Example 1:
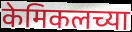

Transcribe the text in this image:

केमिकलच्या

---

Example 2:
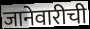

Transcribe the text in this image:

जानेवारीची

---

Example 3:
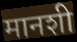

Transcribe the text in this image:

मानशी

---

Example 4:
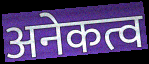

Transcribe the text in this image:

अनेकत्व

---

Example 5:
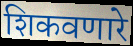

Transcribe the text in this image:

शिकवणारे